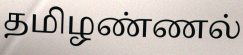
தமிழண்ணல்